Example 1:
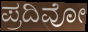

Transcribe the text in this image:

ಪ್ರದಿವೋ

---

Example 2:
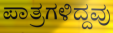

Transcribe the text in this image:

ಪಾತ್ರಗಳಿದ್ದವು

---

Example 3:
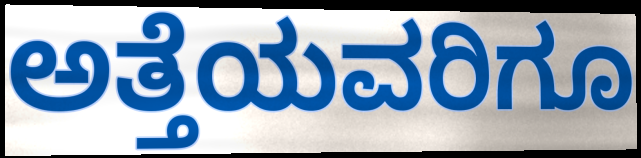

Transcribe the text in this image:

ಅತ್ತೆಯವರಿಗೂ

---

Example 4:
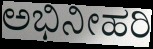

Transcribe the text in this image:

ಅಭಿನೀಹರಿ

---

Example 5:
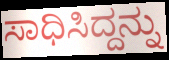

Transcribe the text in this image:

ಸಾಧಿಸಿದ್ದನ್ನು